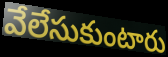
వేలేసుకుంటారు